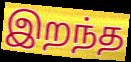
இறந்த